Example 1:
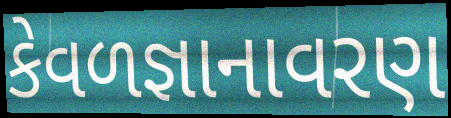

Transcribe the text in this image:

કેવળજ્ઞાનાવરણ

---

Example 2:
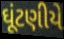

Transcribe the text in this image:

ઘૂંટણીયે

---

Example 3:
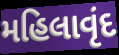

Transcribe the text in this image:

મહિલાવૃંદ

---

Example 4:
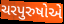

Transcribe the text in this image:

ચરપુરુષોએ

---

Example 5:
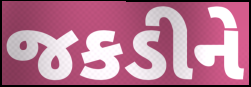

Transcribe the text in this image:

જકડીને